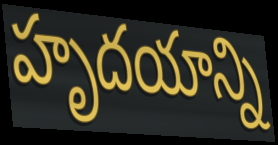
హృదయాన్ని